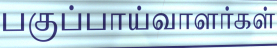
பகுப்பாய்வாளர்கள்